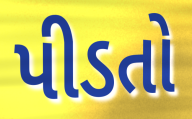
પીડતો